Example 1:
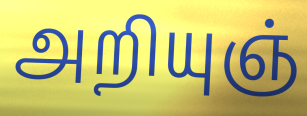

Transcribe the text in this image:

அறியுஞ்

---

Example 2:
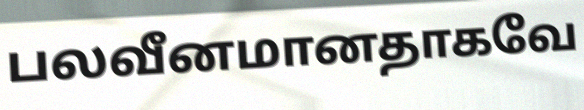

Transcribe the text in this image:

பலவீனமானதாகவே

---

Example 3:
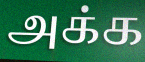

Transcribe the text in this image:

அக்க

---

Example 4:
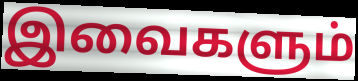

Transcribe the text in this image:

இவைகளும்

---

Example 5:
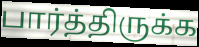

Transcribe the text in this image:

பார்த்திருக்க